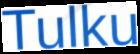
Tulku